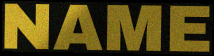
NAME